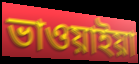
ভাওয়াইয়া